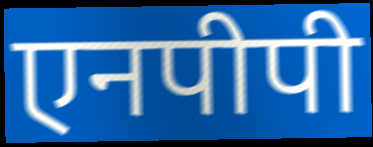
एनपीपी